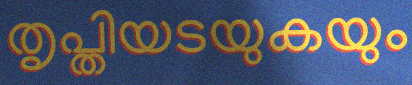
തൃപ്തിയടയുകയും